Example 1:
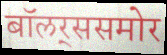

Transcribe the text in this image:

बॉलर्ससमोर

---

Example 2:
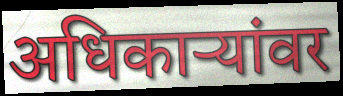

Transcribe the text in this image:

अधिकाऱ्यांवर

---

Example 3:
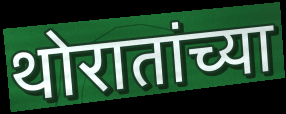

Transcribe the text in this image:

थोरातांच्या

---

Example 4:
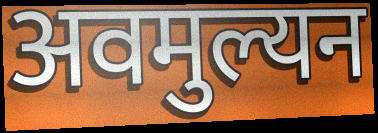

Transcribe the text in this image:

अवमुल्यन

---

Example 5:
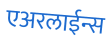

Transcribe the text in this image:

एअरलाईन्स